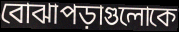
বোঝাপড়াগুলোকে